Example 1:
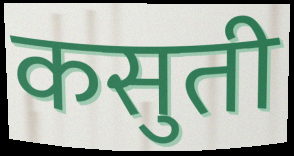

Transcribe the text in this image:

कसुती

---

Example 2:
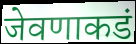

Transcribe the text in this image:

जेवणाकडं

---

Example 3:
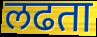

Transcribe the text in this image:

लढता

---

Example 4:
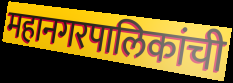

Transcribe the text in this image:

महानगरपालिकांची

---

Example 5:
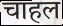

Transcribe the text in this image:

चाहल